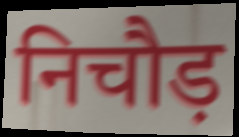
निचौड़